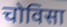
चोविसा